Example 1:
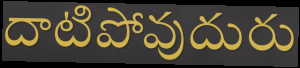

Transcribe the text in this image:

దాటిపోవుదురు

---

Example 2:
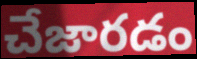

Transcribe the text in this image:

చేజారడం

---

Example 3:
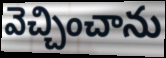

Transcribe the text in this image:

వెచ్చించాను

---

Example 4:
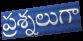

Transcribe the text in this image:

ప్రశ్నలుగా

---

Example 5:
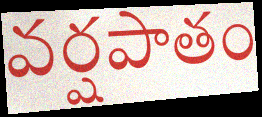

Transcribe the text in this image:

వర్షపాతం